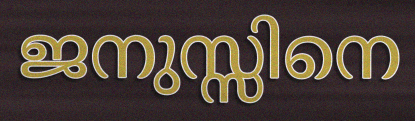
ജനുസ്സിനെ